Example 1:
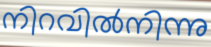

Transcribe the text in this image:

നിറവിൽനിന്നു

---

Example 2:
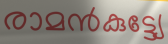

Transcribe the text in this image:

രാമൻകുട്ട്യേ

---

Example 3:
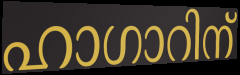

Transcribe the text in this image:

ഹാഗാറിന്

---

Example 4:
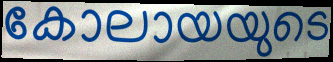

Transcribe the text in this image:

കോലായയുടെ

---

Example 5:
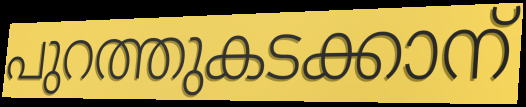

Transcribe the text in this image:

പുറത്തുകടക്കാന്